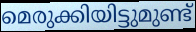
മെരുക്കിയിട്ടുമുണ്ട്